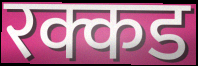
रक्कड